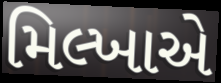
મિલ્ખાએ